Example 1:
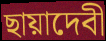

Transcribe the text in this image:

ছায়াদেবী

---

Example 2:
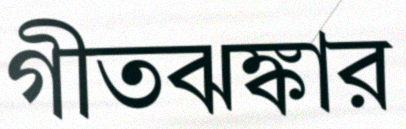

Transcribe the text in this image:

গীতঝঙ্কার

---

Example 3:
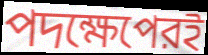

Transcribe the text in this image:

পদক্ষেপেরই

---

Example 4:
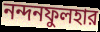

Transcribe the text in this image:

নন্দনফুলহার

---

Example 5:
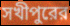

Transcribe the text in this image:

সখীপুরের